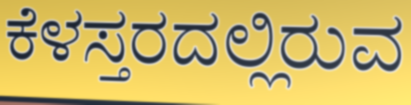
ಕೆಳಸ್ತರದಲ್ಲಿರುವ